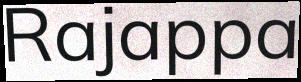
Rajappa